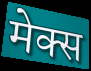
मेक्स